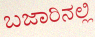
ಬಜಾರಿನಲ್ಲಿ